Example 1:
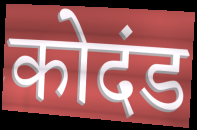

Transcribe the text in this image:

कोदंड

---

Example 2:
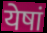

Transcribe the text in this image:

येषां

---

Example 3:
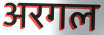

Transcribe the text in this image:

अरगल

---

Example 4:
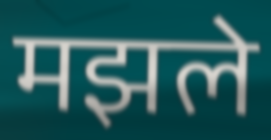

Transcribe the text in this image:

मझले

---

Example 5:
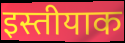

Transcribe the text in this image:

इस्तीयाक